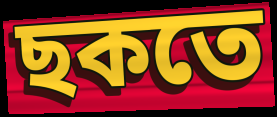
ছকতে